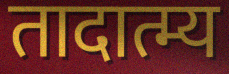
तादात्म्य